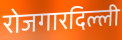
रोजगारदिल्ली